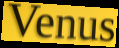
Venus